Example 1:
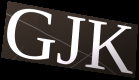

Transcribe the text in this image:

GJK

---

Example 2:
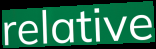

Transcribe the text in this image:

relative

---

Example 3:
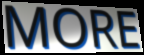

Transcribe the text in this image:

MORE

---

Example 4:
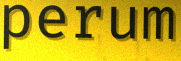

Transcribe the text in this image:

perum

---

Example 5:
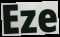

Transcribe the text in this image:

Eze